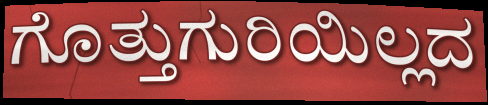
ಗೊತ್ತುಗುರಿಯಿಲ್ಲದ